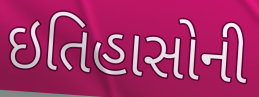
ઇતિહાસોની